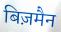
बिज़मैन